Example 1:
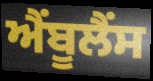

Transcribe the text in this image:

ਐੰਬੂਲੈਂਸ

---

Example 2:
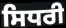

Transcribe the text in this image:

ਸਿਧਰੀ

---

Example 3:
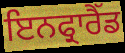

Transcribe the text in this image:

ਇਨਫ੍ਰਾਰੈੱਡ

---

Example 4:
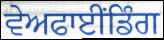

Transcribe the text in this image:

ਵੇਅਫਾਈਂਡਿੰਗ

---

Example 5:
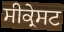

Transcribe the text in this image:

ਸੀਕ੍ਰੇਸਟ